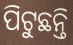
ପିଟୁଛନ୍ତି